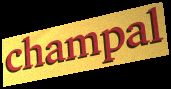
champal